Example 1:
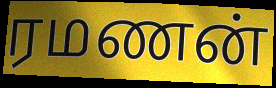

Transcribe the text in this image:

ரமணன்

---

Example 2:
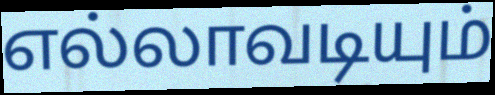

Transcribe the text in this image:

எல்லாவடியும்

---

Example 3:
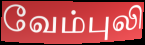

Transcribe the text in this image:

வேம்புலி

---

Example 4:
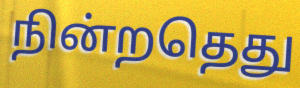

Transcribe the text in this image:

நின்றதெது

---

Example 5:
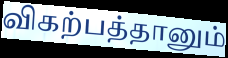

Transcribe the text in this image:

விகற்பத்தானும்